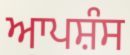
ਆਪਸ਼ੰਸ